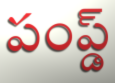
పంప్డ్